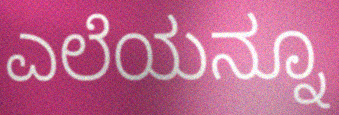
ಎಲೆಯನ್ನೂ